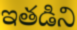
ఇతడిని